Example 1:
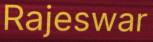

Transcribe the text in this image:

Rajeswar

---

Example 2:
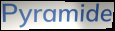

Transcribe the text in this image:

Pyramide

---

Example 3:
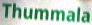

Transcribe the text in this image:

Thummala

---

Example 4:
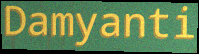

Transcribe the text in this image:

Damyanti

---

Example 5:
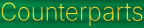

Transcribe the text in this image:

Counterparts